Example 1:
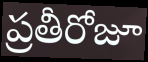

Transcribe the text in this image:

ప్రతీరోజూ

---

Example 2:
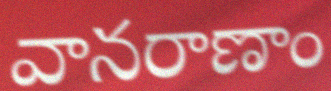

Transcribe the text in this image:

వానరాణాం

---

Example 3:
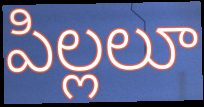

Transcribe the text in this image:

పిల్లలూ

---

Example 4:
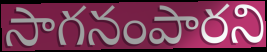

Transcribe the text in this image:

సాగనంపారని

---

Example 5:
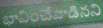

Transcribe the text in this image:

భావించేవాడినని